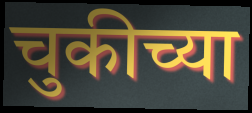
चुकीच्या